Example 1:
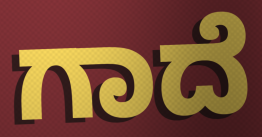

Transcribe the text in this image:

ಗಾದೆ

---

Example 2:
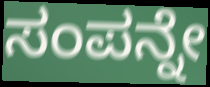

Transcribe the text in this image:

ಸಂಪನ್ನೇ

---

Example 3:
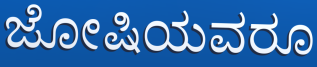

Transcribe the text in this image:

ಜೋಷಿಯವರೂ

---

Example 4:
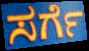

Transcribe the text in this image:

ಸರ್ಗೆ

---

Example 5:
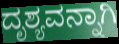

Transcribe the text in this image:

ದೃಶ್ಯವನ್ನಾಗಿ